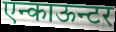
एन्काऊन्टर